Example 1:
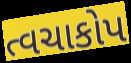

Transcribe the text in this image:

ત્વચાકોપ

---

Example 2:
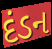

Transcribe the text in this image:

દંડન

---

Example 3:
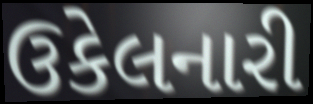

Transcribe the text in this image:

ઉકેલનારી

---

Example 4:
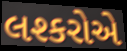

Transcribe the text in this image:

લશ્કરોએ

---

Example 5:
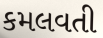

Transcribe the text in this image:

કમલવતી